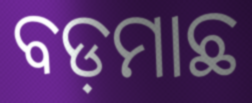
ବଡ଼ମାଛ